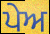
ਪੇਅ